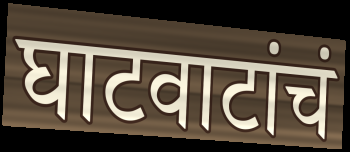
घाटवाटांचं